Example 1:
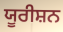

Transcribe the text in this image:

ਯੂਰੀਸ਼ਨ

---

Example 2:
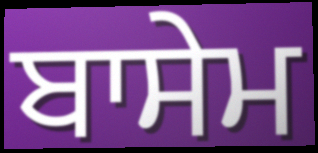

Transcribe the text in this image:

ਬਾਸੇਮ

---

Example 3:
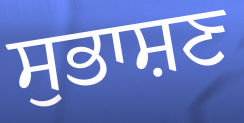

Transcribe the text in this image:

ਸੁਭਾਸ਼ਣ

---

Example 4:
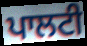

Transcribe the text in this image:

ਪਾਲਟੀ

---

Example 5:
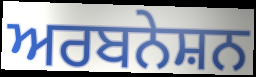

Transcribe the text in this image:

ਅਰਬਨੇਸ਼ਨ